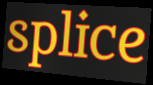
splice